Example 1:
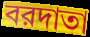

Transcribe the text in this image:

বরদাতা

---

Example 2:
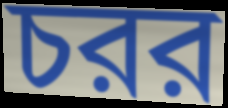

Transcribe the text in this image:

চরর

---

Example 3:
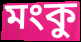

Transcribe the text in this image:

মংকু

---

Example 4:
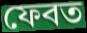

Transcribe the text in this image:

ফেবত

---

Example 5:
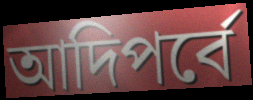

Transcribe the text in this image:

আদিপর্বে